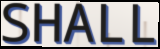
SHALL